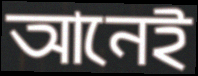
আনেই